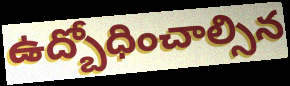
ఉద్బోధించాల్సిన